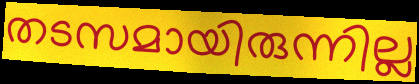
തടസമായിരുന്നില്ല